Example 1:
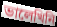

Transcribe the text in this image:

ভালেখিনি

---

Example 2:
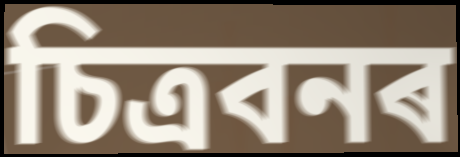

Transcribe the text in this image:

চিত্ৰবনৰ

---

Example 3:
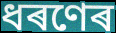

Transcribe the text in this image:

ধৰণেৰ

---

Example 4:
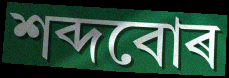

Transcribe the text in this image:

শব্দবোৰ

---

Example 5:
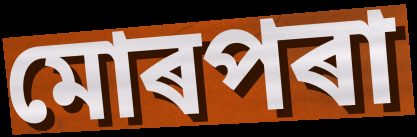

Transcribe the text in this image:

মোৰপৰা